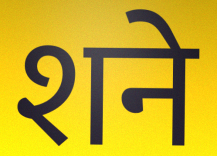
शने